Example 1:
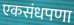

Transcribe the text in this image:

एकसंधपणा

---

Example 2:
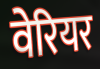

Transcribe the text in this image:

वेरियर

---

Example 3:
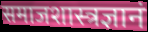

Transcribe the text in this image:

समाजशास्त्रज्ञानं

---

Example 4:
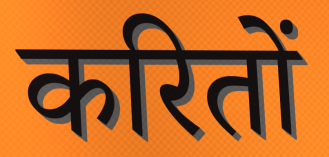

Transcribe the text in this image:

करितों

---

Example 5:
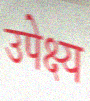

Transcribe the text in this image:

उपेक्ष्य